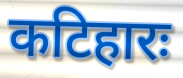
कटिहारः